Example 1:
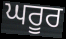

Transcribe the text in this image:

ਘਰੂਰ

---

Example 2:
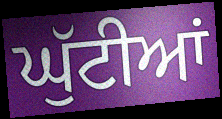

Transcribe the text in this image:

ਘੁੱਟੀਆਂ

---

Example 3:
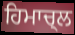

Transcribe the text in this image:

ਹਿਮਾਚ੍ਲ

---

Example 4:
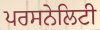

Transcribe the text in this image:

ਪਰਸਨੇਲਿਟੀ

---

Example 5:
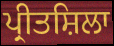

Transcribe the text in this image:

ਪ੍ਰੀਤਸ਼ਿਲਾ